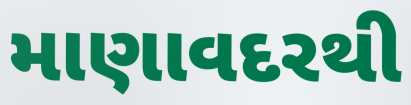
માણાવદરથી